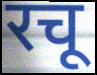
रचू